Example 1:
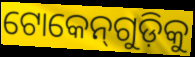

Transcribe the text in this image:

ଟୋକେନ୍‌ଗୁଡ଼ିକୁ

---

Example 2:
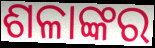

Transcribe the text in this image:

ଶଳାଙ୍କର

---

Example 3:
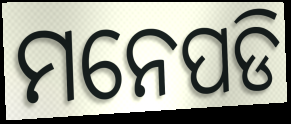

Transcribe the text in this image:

ମନେପଡି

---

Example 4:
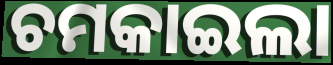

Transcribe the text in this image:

ଚମକାଇଲା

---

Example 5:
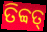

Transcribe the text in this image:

ତିବ୍ବତ୍